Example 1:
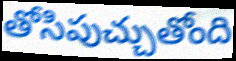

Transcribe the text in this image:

తోసిపుచ్చుతోంది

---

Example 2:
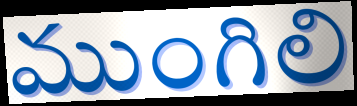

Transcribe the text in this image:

ముంగిలి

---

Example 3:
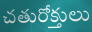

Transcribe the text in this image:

చతురోక్తులు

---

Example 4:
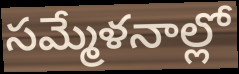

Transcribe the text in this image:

సమ్మేళనాల్లో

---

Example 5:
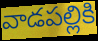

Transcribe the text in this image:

వాడపల్లికి